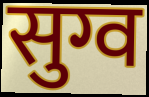
सुग्व